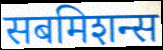
सबमिशन्स